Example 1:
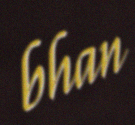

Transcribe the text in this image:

bhan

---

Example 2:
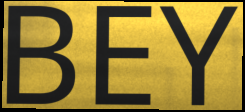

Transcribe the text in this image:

BEY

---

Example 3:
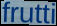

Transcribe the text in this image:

frutti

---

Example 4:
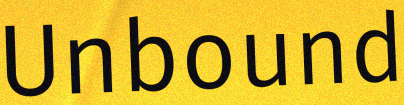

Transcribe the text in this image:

Unbound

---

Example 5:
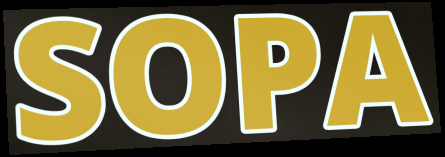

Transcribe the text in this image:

SOPA